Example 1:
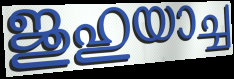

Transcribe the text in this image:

ജുഹുയാച്ച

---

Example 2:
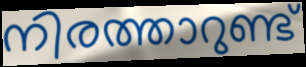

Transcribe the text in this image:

നിരത്താറുണ്ട്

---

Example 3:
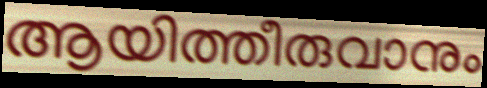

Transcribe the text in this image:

ആയിത്തീരുവാനും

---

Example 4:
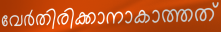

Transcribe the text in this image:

വേർതിരിക്കാനാകാത്തത്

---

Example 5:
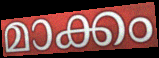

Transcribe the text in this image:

മാക്കം